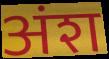
अंश